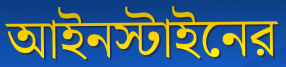
আইনস্টাইনের